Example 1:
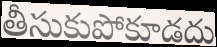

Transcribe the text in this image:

తీసుకుపోకూడదు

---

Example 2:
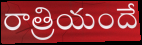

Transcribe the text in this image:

రాత్రియందే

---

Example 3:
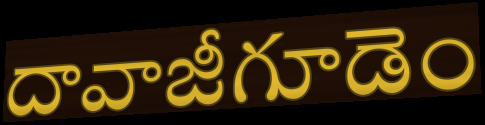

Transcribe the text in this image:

దావాజీగూడెం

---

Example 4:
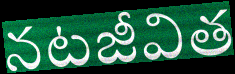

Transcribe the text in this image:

నటజీవిత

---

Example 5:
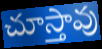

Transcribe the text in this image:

చూస్తావు